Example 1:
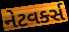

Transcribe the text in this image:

નેટવર્ક્સ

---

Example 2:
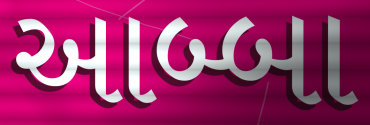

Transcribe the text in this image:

આબ્બા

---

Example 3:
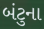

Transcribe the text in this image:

બંટુના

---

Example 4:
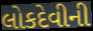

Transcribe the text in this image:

લોકદેવીની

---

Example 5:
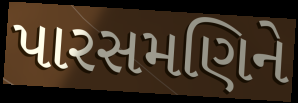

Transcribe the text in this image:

પારસમણિને